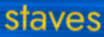
staves